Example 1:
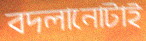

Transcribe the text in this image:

বদলানোটাই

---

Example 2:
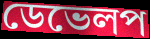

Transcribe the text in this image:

ডেভেলপ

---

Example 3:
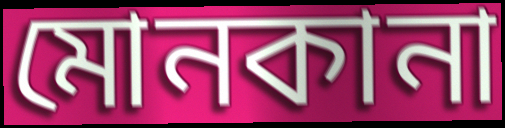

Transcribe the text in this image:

মোনকানা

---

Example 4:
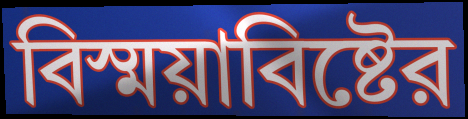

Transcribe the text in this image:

বিস্ময়াবিষ্টের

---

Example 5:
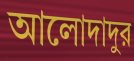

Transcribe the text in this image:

আলোদাদুর